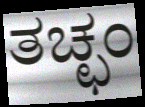
ತಚ್ಛಂ